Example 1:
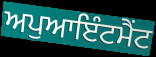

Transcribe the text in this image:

ਅਪੁਆਇੰਟਮੈਂਟ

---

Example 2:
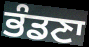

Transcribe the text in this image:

ਭੰਡਣਾ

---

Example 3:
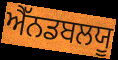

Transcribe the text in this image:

ਐੱਨਡਬਲਯੂ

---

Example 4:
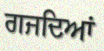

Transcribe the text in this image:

ਗਜਦਿਆਂ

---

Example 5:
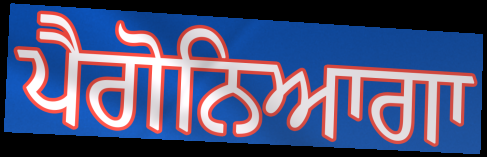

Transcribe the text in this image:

ਪੈਗੋਨਿਆਗਾ